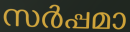
സർപ്പമാ